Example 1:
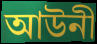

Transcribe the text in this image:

আউনী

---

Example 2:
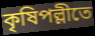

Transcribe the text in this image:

কৃষিপল্লীতে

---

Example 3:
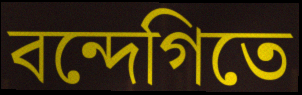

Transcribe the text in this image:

বন্দেগিতে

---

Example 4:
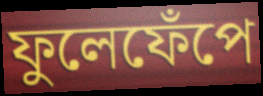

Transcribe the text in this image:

ফুলেফেঁপে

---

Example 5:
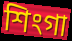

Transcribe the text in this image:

শিংগা